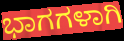
ಭಾಗಗಳಾಗಿ